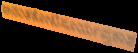
ಅನಂತಕೋಟಿಸೂರ್ಯಪ್ರಕಾಶ